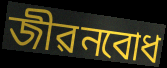
জীৱনবোধ